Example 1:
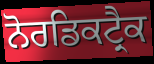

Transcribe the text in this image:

ਨੋਰਡਿਕਟ੍ਰੈਕ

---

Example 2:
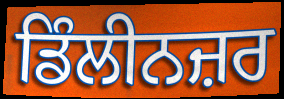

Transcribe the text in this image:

ਡਿੰਲੀਨਜ਼ਰ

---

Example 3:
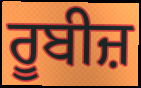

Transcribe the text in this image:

ਰੂਬੀਜ਼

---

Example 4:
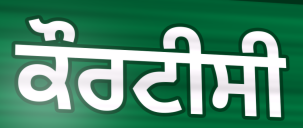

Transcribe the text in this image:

ਕੌਰਟੀਸੀ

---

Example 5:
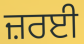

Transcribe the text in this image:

ਜ਼ਰਈ